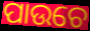
ପାଉଚେ